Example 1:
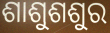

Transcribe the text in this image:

ଶାଶୁଶଶୁର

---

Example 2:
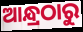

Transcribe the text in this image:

ଆନ୍ଧ୍ରଠାରୁ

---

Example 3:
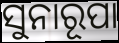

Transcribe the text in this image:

ସୁନାରୂପା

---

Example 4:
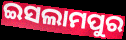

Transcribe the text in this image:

ଇସଲାମପୁର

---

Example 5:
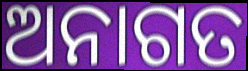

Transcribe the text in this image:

ଅନାଗତ